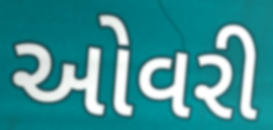
ઓવરી